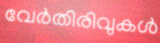
വേർതിരിവുകൾ